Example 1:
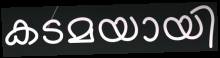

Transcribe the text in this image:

കടമയായി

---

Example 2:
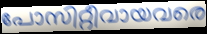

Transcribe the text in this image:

പോസിറ്റീവായവരെ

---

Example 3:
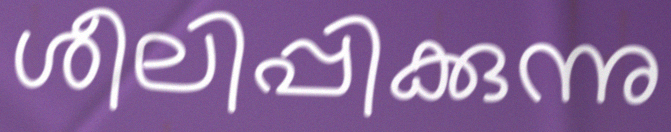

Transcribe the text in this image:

ശീലിപ്പിക്കുന്നു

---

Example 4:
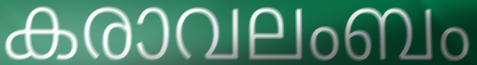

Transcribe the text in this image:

കരാവലംബം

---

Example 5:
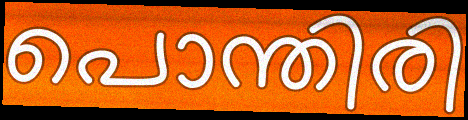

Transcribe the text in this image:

പൊന്തിരി